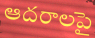
ఆదరాలపై